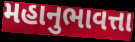
મહાનુભાવત્તા